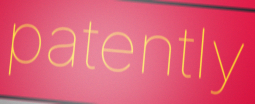
patently